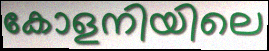
കോളനിയിലെ